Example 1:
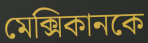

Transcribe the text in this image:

মেক্সিকানকে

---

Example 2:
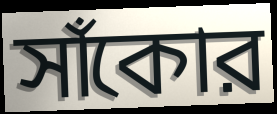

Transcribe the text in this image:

সাঁকোর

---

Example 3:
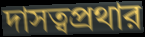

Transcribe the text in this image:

দাসত্বপ্রথার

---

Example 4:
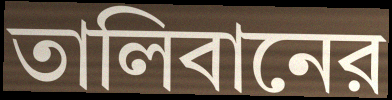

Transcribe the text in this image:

তালিবানের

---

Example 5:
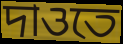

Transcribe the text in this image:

দাওতে